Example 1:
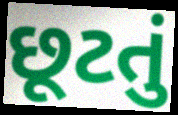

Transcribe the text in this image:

છૂટતું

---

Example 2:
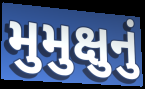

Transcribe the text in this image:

મુમુક્ષુનું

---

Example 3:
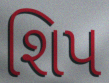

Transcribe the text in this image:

શિપ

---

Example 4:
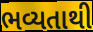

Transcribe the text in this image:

ભવ્યતાથી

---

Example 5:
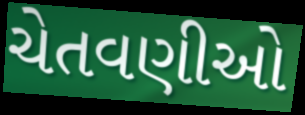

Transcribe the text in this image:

ચેતવણીઓ